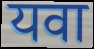
यवा